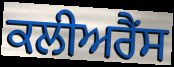
ਕਲੀਅਰੈਂਸ